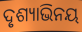
ଦୃଶ୍ୟାଭିନୟ